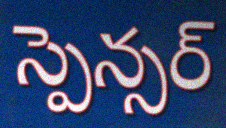
స్పెన్సర్